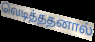
வெடித்ததனால்